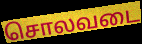
சொலவடை